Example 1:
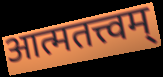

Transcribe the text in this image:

आत्मतत्त्वम्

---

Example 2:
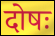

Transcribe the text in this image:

दोषः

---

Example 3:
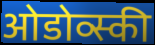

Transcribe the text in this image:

ओडोव्स्की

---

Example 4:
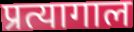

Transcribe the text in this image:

प्रत्यागाल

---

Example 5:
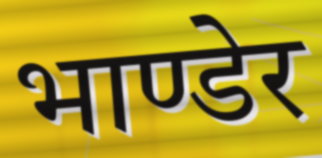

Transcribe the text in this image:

भाण्‍डेर